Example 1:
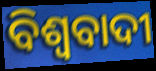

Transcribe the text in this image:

ବିଶ୍ବବାଦୀ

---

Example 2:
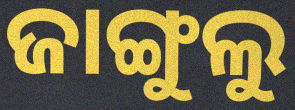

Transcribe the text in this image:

ଜାଙ୍ଗୁଲୁ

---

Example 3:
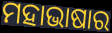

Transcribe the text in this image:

ମହାଭାଷାର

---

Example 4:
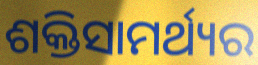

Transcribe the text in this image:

ଶକ୍ତିସାମର୍ଥ୍ୟର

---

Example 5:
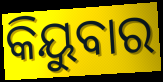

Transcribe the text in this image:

କିୟୁବାର